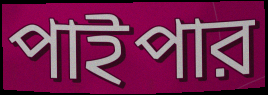
পাইপার